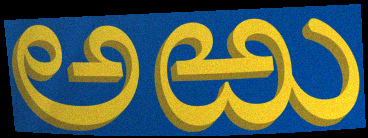
ಅಱು